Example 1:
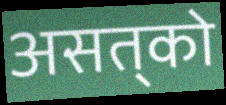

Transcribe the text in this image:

असत्‌को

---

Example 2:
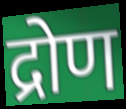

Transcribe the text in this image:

द्रोण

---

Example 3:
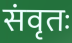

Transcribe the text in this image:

संवृतः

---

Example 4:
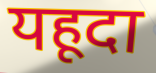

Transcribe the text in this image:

यहूदा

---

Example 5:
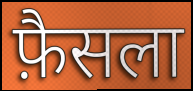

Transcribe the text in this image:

फ़ैसला